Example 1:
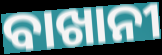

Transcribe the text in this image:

ବାଖାନୀ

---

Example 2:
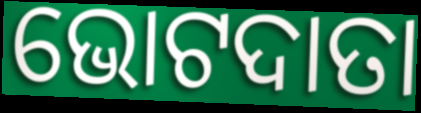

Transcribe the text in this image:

ଭୋଟଦାତା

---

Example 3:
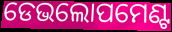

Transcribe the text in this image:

ଡେଭଲୋପମେଣ୍ଟ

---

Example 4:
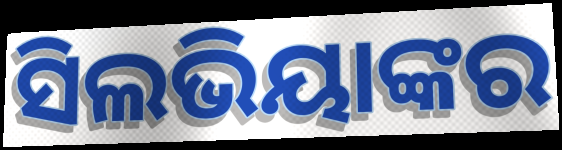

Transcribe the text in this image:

ସିଲଭିୟାଙ୍କର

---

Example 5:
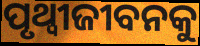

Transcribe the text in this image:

ପୃଥ୍ୱୀଜୀବନକୁ